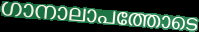
ഗാനാലാപത്തോടെ